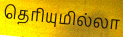
தெரியுமில்லா